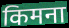
किमना